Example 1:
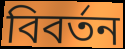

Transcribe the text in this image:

বিবর্তন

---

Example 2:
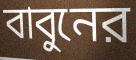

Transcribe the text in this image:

বাবুনের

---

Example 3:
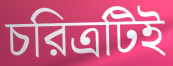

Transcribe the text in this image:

চরিত্রটিই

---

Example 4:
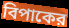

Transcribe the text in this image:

বিপাকের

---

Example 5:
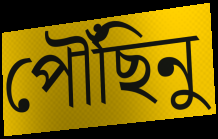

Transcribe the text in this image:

পৌঁছিনু